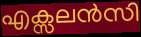
എക്സലൻസി